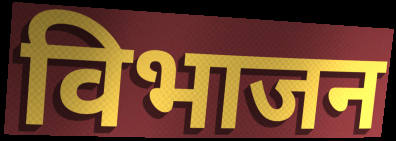
विभाजन